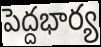
పెద్దభార్య